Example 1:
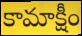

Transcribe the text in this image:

కామాక్షీం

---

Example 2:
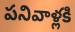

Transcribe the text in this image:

పనివాళ్లకి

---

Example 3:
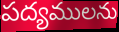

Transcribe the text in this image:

పద్యములను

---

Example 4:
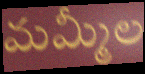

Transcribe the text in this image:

మమ్మీల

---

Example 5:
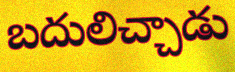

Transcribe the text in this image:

బదులిచ్చాడు